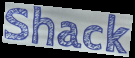
Shack